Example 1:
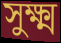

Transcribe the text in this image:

সুক্ষ্ম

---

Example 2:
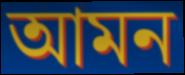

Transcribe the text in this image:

আমন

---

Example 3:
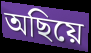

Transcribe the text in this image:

অছিয়ে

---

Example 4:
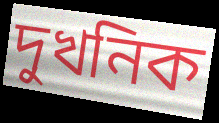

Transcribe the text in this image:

দুখনিক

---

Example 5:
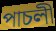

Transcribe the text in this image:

পাচলী